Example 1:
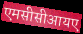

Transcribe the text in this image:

एमसीसीआयए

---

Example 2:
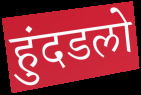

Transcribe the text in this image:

हुंदडलो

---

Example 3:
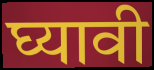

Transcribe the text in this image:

घ्यावी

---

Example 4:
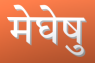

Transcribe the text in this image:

मेघेषु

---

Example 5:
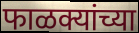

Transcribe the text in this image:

फाळक्यांच्या